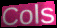
Cols